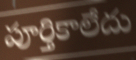
పూర్తికాలేదు